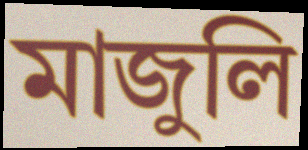
মাজুলি